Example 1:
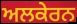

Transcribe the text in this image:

ਅਲਕੇਰਨ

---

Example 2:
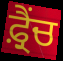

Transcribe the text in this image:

ਫ਼੍ਰੈਂਚ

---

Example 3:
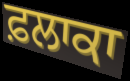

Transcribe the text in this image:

ਫ਼ਲਾਕਾ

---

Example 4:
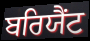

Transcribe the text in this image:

ਬਰਿਯੈਂਟ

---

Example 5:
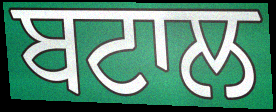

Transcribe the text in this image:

ਬਟਾਲ